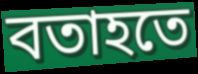
বতাহতে